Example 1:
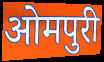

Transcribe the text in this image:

ओमपुरी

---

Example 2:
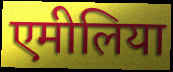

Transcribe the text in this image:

एमीलिया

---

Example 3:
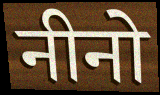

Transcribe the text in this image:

नीनो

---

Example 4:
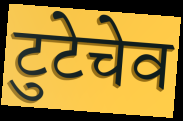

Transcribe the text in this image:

टुटेचेव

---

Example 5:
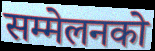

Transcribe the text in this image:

सम्मेलनको